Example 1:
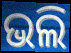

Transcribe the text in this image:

ଭଲି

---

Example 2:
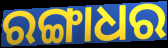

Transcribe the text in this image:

ରଙ୍ଗାଧର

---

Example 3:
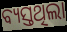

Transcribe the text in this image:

ବ୍ୟସ୍ତଥିଲା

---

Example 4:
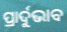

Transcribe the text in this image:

ପ୍ରାର୍ଦୁଭାବ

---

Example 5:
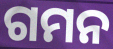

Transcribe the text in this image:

ଗମନ